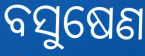
ବସୁଷେଣ